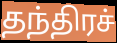
தந்திரச்